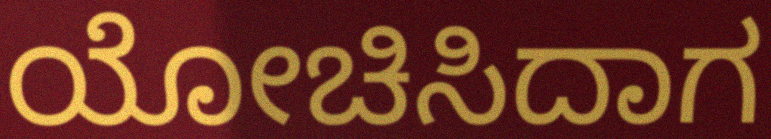
ಯೋಚಿಸಿದಾಗ